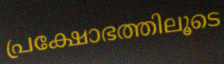
പ്രക്ഷോഭത്തിലൂടെ